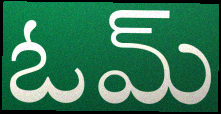
ఓమ్